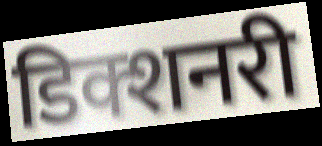
डिक्‍शनरी